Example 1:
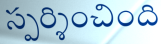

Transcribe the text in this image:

స్పర్శించింది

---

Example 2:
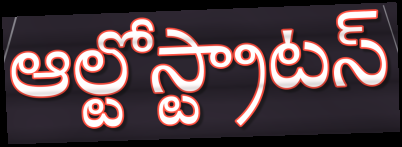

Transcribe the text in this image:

ఆల్టోస్ట్రాటస్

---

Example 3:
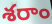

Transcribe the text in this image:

శరాం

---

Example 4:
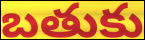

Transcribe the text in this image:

బతుకు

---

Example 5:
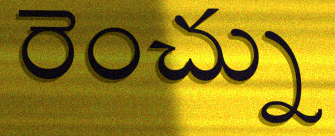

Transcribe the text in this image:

రెంచ్ను